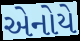
એનોયે